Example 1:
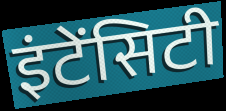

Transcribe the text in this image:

इंटेंसिटी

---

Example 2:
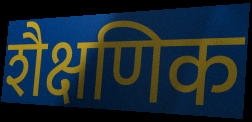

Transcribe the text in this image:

शैक्षणिक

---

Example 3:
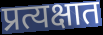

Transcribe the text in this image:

प्रत्यक्षात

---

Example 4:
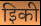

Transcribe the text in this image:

इिकी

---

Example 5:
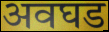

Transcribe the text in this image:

अवघड